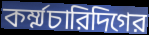
কর্ম্মচারিদিগের